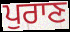
ਪੁਰਾਣ